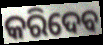
କରିଦେବ